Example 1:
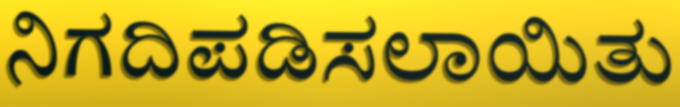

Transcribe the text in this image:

ನಿಗದಿಪಡಿಸಲಾಯಿತು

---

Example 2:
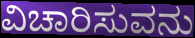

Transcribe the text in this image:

ವಿಚಾರಿಸುವನು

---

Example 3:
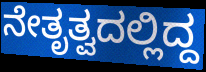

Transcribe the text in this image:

ನೇತೃತ್ವದಲ್ಲಿದ್ದ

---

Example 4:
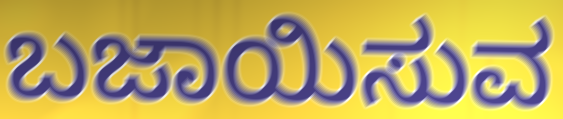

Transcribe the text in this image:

ಬಜಾಯಿಸುವ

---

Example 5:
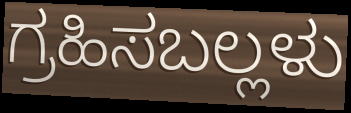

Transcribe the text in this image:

ಗ್ರಹಿಸಬಲ್ಲಳು